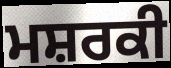
ਮਸ਼ਰਕੀ